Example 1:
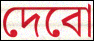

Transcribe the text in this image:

দেবো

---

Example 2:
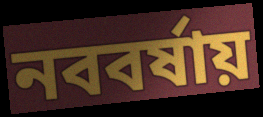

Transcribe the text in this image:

নববর্ষায়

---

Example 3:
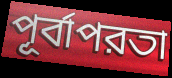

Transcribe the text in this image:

পূর্বাপরতা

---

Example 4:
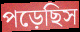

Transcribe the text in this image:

পড়েছিস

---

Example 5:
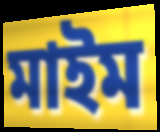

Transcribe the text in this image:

মাইম